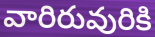
వారిరువురికి